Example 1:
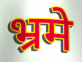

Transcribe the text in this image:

भ्रमे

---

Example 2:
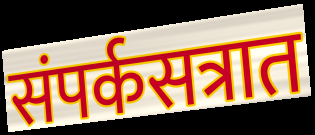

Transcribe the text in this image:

संपर्कसत्रात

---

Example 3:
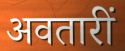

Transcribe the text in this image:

अवतारीं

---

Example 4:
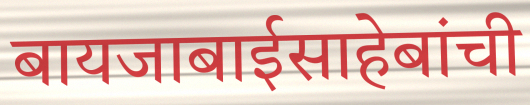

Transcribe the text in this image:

बायजाबाईसाहेबांची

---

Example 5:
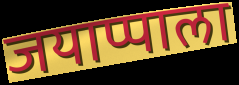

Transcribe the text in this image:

जयाप्पाला